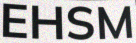
EHSM